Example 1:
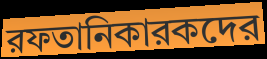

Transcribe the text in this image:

রফতানিকারকদের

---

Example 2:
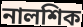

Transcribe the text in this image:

নালশিক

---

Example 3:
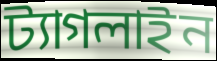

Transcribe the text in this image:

ট্যাগলাইন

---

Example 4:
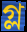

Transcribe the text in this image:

গ্ল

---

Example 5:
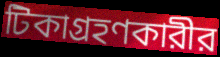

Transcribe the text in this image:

টিকাগ্রহণকারীর